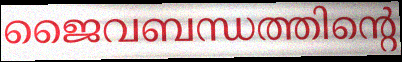
ജൈവബന്ധത്തിന്റെ